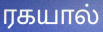
ரகயால்